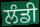
ਲੰਡੀ